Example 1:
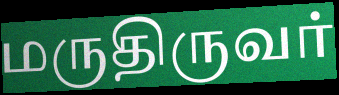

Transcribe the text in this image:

மருதிருவர்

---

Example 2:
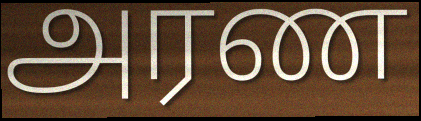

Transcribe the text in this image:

அரண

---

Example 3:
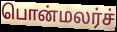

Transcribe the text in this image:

பொன்மலர்ச்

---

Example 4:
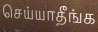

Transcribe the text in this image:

செய்யாதீங்க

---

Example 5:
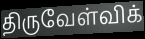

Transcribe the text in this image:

திருவேள்விக்